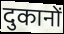
दुकानों